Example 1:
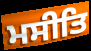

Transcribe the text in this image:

ਮਸੀਤਿ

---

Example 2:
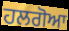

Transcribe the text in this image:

ਹਲਗੋਆ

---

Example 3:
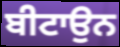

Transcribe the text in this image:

ਬੀਟਾਉਨ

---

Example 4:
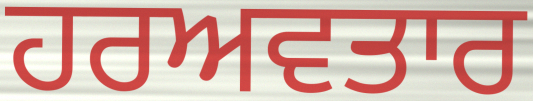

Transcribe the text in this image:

ਹਰਅਵਤਾਰ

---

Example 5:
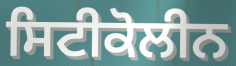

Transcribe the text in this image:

ਸਿਟੀਕੋਲੀਨ